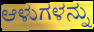
ಆಳುಗಳನ್ನು